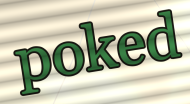
poked